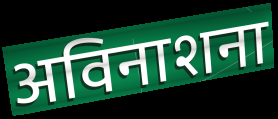
अविनाशना